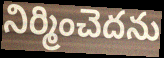
నిర్మించెదను